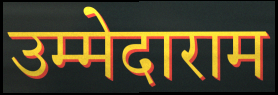
उम्मेदाराम